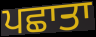
ਪਛਾਤਾ